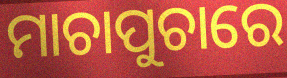
ମାଚାପୁଚାରେ